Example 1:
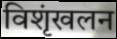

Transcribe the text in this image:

विशृंखलन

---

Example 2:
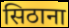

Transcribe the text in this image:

सिठाना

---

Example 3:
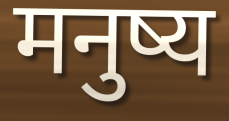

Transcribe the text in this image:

मनुष्‍य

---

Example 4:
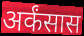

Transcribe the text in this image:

अर्कंसास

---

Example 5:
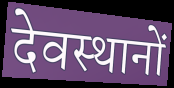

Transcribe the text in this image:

देवस्थानों